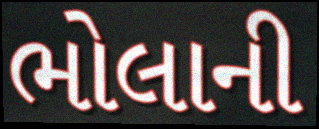
ભોલાની